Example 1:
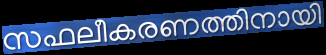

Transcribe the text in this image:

സഫലീകരണത്തിനായി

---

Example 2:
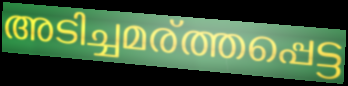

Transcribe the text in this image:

അടിച്ചമര്ത്തപ്പെട്ട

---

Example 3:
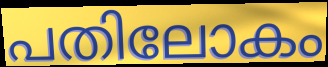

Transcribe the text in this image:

പതിലോകം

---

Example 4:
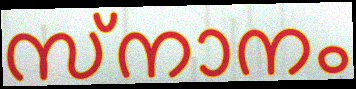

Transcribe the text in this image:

സ്‌നാനം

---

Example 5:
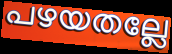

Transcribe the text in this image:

പഴയതല്ലേ